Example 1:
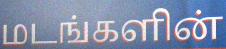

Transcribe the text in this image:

மடங்களின்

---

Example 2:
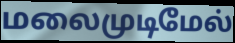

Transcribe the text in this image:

மலைமுடிமேல்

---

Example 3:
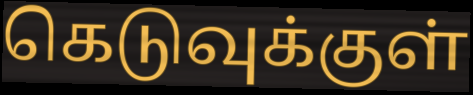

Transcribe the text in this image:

கெடுவுக்குள்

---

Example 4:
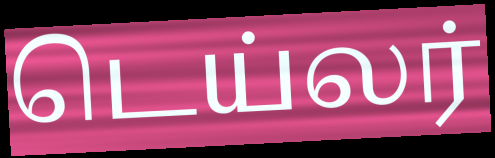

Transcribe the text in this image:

டெய்லர்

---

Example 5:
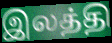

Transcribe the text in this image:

இலத்தி